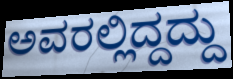
ಅವರಲ್ಲಿದ್ದದ್ದು